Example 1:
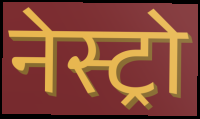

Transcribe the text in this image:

नेस्ट्रो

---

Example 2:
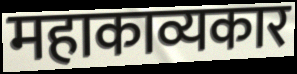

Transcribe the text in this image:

महाकाव्यकार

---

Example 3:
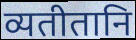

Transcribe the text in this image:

व्यतीतानि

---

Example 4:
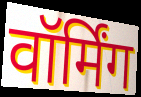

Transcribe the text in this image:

वॉर्मिंग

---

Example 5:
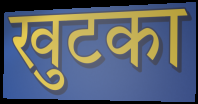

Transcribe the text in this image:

खुटका